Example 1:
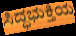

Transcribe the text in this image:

ಸಿದ್ಧಭುಕ್ತಿಯ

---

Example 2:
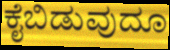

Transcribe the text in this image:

ಕೈಬಿಡುವುದೂ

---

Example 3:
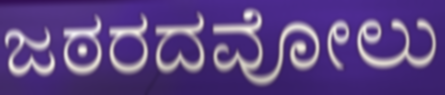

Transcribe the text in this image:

ಜಠರದವೋಲು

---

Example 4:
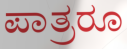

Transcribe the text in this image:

ಪಾತ್ರರೂ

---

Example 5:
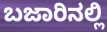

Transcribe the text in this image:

ಬಜಾರಿನಲ್ಲಿ